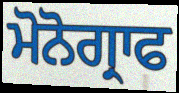
ਮੋਨੋਗ੍ਰਾਫ